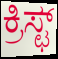
ಕ್ರಿಸ್ಟ್